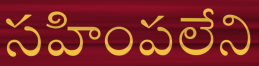
సహింపలేని